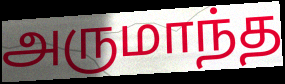
அருமாந்த